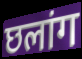
छलांग